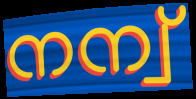
നന്വ്